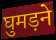
घुमड़ने